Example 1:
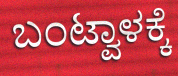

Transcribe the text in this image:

ಬಂಟ್ವಾಳಕ್ಕೆ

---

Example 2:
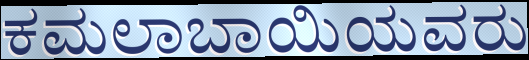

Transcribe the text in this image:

ಕಮಲಾಬಾಯಿಯವರು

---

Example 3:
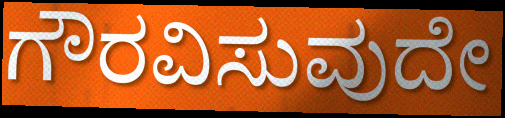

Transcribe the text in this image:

ಗೌರವಿಸುವುದೇ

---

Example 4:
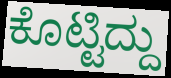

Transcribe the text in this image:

ಕೊಟ್ಟಿದ್ದು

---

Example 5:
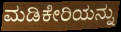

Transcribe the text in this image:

ಮಡಿಕೇರಿಯನ್ನು